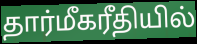
தார்மீகரீதியில்